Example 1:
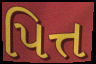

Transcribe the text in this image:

પિત્ત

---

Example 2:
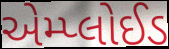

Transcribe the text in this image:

એમ્પ્લોઈડ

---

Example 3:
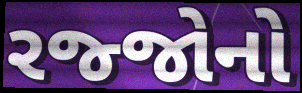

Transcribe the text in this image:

રજ્જોનો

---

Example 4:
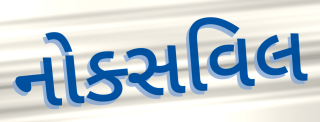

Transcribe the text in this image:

નોક્સવિલ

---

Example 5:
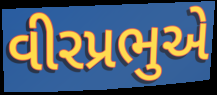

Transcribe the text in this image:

વીરપ્રભુએ